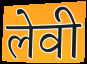
लेवी